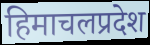
हिमाचलप्रदेश